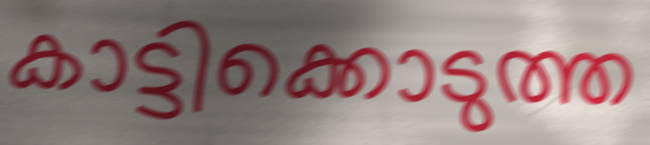
കാട്ടിക്കൊടുത്ത